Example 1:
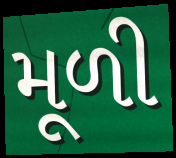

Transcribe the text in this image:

મૂળી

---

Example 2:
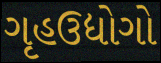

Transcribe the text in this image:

ગૃહઉદ્યોગો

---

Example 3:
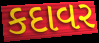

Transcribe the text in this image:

કદાવર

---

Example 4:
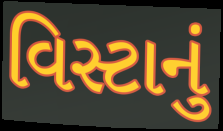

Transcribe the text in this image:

વિસ્ટાનું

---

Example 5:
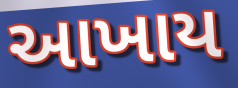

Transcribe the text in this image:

આખાય